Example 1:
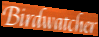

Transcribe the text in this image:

Birdwatcher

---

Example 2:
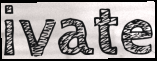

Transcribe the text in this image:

ivate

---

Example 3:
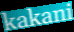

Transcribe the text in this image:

kakani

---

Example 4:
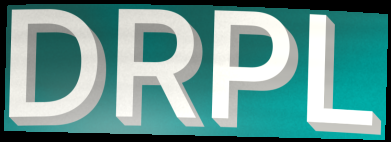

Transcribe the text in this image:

DRPL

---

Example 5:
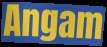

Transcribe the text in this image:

Angam